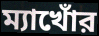
ম্যাখোঁর